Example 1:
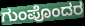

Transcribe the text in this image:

ಗುಂಪೊಂದರ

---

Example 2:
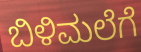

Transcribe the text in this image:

ಬಿಳಿಮಲೆಗೆ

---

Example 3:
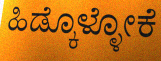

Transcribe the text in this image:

ಹಿಡ್ಕೊಳ್ಳೋಕೆ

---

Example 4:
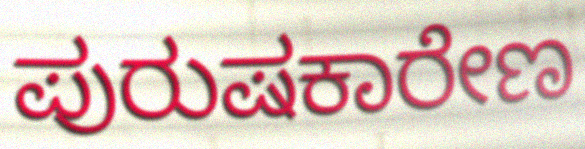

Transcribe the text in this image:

ಪುರುಷಕಾರೇಣ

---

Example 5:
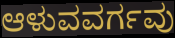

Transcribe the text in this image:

ಆಳುವವರ್ಗವು